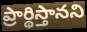
ప్రార్థిస్తానని